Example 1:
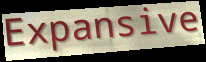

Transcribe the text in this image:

Expansive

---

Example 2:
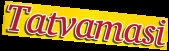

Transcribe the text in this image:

Tatvamasi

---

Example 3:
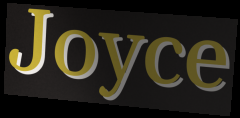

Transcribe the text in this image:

Joyce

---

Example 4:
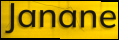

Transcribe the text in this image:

Janane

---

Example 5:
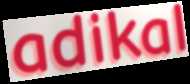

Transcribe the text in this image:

adikal